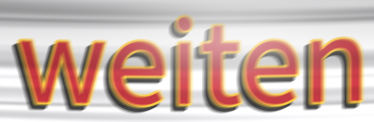
weiten